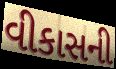
વીકાસની